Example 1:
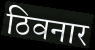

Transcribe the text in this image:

ठिवनार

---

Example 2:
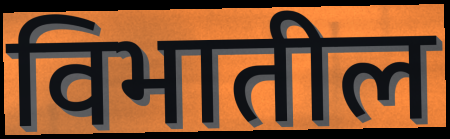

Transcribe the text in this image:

विभातील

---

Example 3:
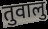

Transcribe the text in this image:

तुवालु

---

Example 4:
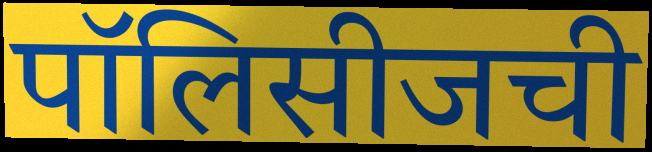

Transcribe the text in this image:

पॉलिसीजची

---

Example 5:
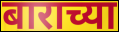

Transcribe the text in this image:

बाराच्या